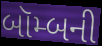
બૉમ્બની